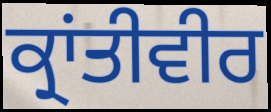
ਕ੍ਰਾਂਤੀਵੀਰ